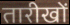
तारीखों